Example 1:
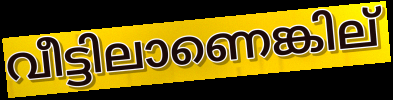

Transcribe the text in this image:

വീട്ടിലാണെങ്കില്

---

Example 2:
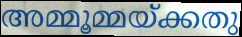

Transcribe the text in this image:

അമ്മൂമ്മയ്ക്കതു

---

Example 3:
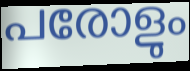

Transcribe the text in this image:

പരോളും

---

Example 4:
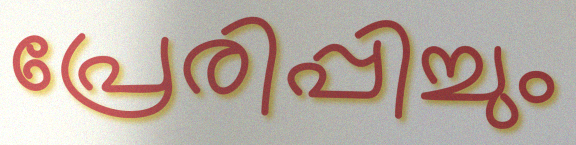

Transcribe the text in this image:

പ്രേരിപ്പിച്ചും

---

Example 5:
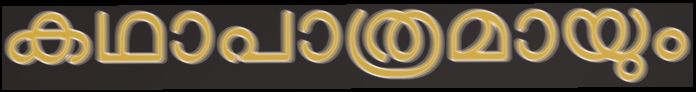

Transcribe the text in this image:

കഥാപാത്രമായും